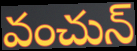
వంచున్